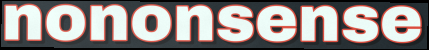
nononsense